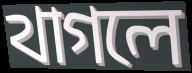
থাগলে